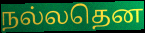
நல்லதென